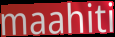
maahiti